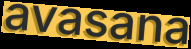
avasana